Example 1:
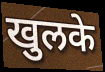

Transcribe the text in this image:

खुलके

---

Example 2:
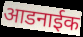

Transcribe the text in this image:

आडनाईक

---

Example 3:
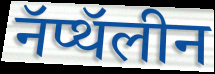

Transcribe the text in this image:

नॅप्थॅलीन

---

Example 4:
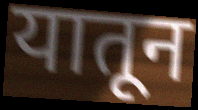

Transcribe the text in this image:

यातून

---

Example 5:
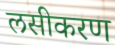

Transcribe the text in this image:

लसीकरण